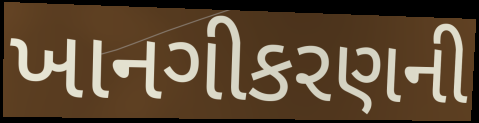
ખાનગીકરણની